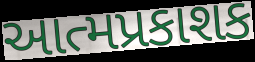
આત્મપ્રકાશક